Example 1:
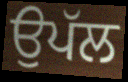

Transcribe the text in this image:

ਉਪੱਲ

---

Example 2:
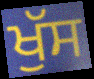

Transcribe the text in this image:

ਖੁੱਸ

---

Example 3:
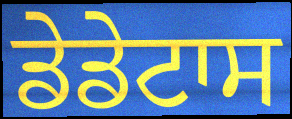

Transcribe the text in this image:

ਡੇਡੇਟਾਸ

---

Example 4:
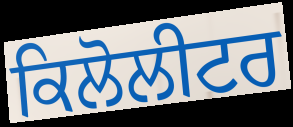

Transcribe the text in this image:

ਕਿਲੋਲੀਟਰ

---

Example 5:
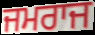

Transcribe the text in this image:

ਜਮਰਾਜ